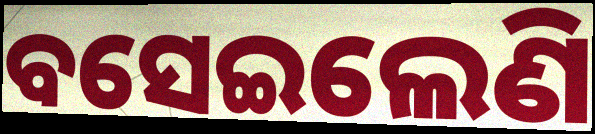
ବସେଇଲେଣି